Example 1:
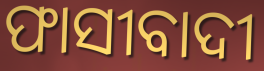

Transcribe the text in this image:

ଫାସୀବାଦୀ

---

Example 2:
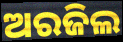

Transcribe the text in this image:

ଅରଜିଲ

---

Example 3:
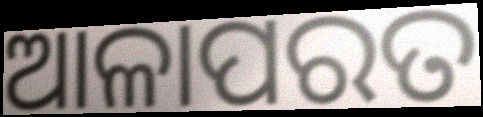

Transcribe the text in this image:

ଆଳାପରତ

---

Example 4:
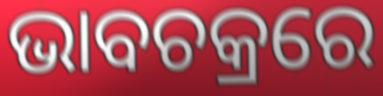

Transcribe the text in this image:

ଭାବଚକ୍ରରେ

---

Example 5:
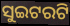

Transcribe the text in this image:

ସୁଇଟରଟି